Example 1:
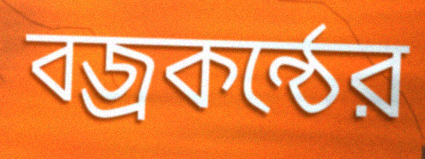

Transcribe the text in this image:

বজ্রকন্ঠের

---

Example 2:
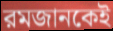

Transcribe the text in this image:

রমজানকেই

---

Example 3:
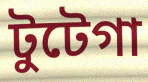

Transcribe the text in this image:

টুটেগা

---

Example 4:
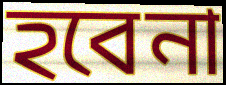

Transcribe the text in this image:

হবেনা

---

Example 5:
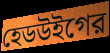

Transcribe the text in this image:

হেডউইগের